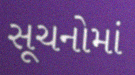
સૂચનોમાં